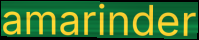
amarinder